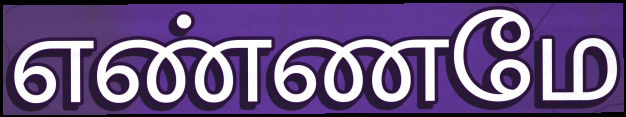
எண்ணமே